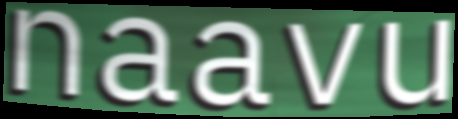
naavu